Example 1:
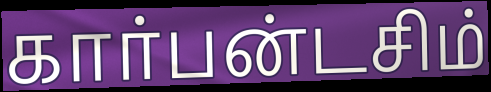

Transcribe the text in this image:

கார்பன்டசிம்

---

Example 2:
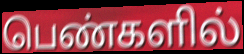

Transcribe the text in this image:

பெண்களில்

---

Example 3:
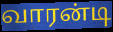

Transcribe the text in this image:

வாரன்டி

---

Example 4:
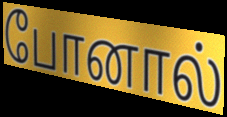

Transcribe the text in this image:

போனால்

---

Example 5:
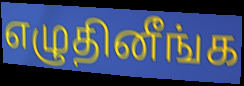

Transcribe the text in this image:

எழுதினீங்க